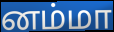
னம்மா